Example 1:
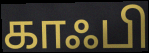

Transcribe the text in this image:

காஃபி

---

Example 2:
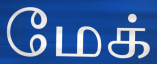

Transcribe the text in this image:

மேக்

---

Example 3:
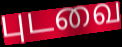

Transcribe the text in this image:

புடவை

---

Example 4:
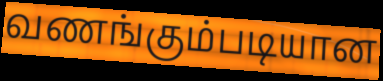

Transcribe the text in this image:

வணங்கும்படியான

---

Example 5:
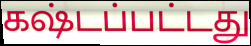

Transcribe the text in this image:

கஷ்டப்பட்டது